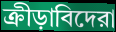
ক্রীড়াবিদেরা